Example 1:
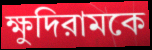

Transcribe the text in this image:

ক্ষুদিরামকে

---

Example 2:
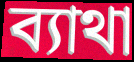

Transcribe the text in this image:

ব্যাথা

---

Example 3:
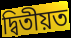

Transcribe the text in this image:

দ্বিতীয়ত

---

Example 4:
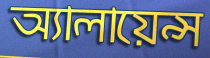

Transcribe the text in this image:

অ্যালায়েন্স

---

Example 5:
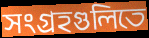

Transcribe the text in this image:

সংগ্রহগুলিতে